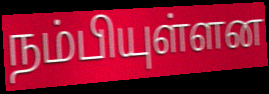
நம்பியுள்ளன